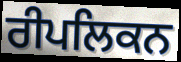
ਰੀਪਲਿਕਨ